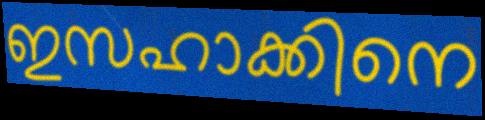
ഇസഹാക്കിനെ